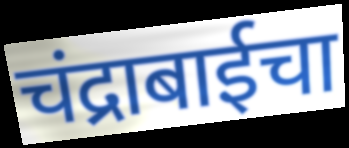
चंद्राबाईचा